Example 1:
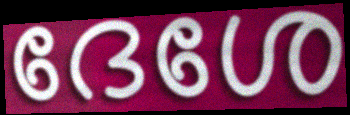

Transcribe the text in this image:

ദേശേ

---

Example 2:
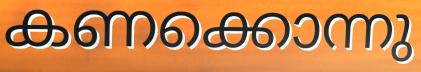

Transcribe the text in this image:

കണക്കൊന്നു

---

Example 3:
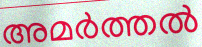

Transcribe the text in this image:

അമർത്തൽ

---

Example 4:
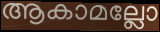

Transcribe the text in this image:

ആകാമല്ലോ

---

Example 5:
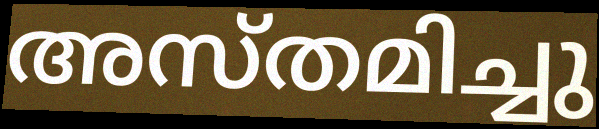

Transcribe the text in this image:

അസ്തമിച്ചു